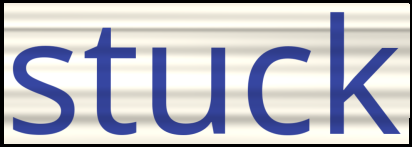
stuck